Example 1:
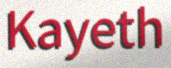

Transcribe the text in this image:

Kayeth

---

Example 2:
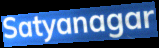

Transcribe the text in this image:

Satyanagar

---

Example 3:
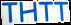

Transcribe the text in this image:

THTT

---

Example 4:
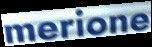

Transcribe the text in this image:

merione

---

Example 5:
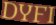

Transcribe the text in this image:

DYFI